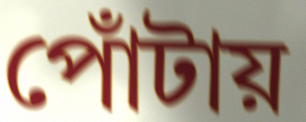
পোঁটায়